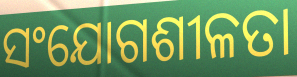
ସଂଯୋଗଶୀଳତା